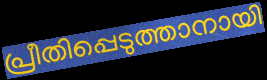
പ്രീതിപ്പെടുത്താനായി